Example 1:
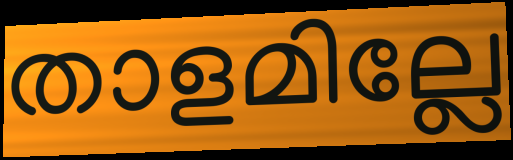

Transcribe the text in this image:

താളമില്ലേ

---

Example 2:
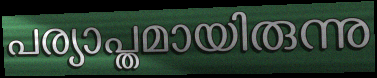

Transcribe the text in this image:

പര്യാപ്തമായിരുന്നു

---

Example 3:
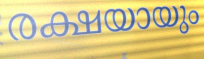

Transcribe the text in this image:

രക്ഷയായും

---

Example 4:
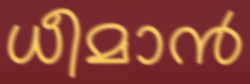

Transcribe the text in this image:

ധീമാൻ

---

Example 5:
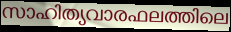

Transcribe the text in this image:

സാഹിത്യവാരഫലത്തിലെ